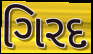
ગિરદ